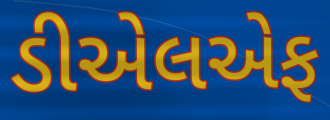
ડીએલએફ